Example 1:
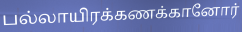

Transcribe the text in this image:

பல்லாயிரக்கணக்கானோர்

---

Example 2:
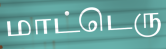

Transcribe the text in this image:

மாட்டெரு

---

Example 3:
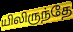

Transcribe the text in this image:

யிலிருந்தே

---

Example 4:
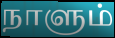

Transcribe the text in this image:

நாளும்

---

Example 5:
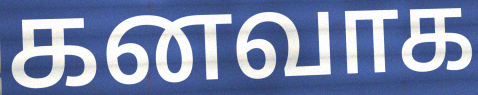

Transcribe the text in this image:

கனவாக